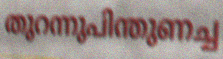
തുറന്നുപിന്തുണച്ച